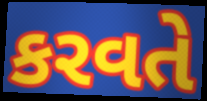
કરવતે